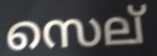
സെല്